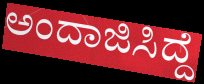
ಅಂದಾಜಿಸಿದ್ದೆ